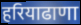
हरियाढाणा